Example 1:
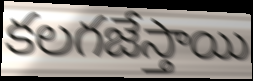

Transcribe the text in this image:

కలగజేస్తాయి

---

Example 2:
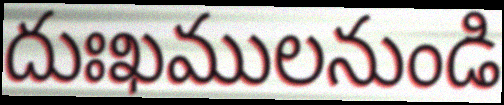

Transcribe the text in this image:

దుఃఖములనుండి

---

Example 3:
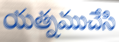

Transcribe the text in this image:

యత్నముచేసి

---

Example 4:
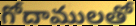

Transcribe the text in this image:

గోదాములతో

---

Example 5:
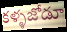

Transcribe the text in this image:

కళ్ళజోడూ